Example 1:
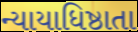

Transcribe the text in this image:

ન્યાયાધિષ્ઠાતા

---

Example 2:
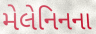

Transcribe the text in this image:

મેલેનિનના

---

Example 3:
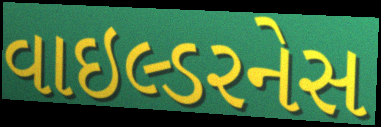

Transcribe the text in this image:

વાઇલ્ડરનેસ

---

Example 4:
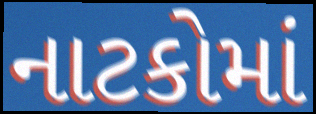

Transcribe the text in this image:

નાટકોમાં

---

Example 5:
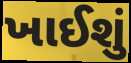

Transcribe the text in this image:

ખાઈશું